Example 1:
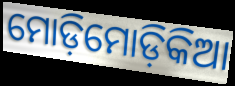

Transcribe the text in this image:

ମୋଡ଼ିମୋଡ଼ିକିଆ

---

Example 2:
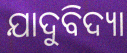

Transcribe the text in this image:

ଯାଦୁବିଦ୍ୟା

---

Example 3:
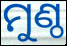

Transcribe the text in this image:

ମୁଣ୍ଠ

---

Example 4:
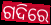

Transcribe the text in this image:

ଗଦିରେ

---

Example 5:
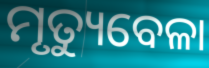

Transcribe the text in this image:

ମୃତ୍ୟୁବେଳା